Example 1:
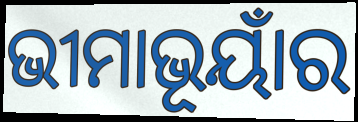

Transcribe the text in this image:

ଭୀମାଭୂୟାଁର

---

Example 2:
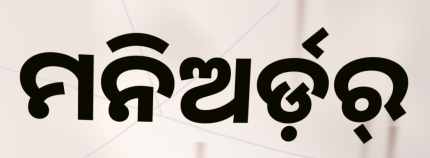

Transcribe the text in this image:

ମନିଅର୍ଡ଼ର୍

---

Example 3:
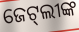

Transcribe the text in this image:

ଜେଟ୍‌ଲୀଙ୍କ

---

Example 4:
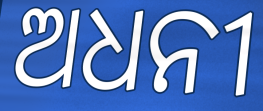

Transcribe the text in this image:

ଅଧନୀ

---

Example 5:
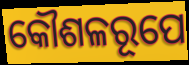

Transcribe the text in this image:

କୌଶଳରୂପେ